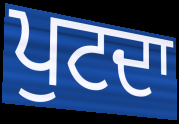
ਪੁਟਦਾ